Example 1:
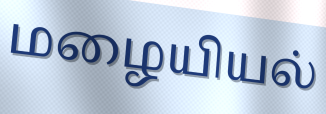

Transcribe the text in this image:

மழையியல்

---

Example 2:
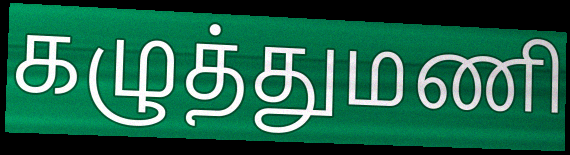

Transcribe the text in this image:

கழுத்துமணி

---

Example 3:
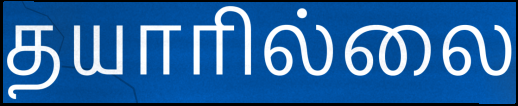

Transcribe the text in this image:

தயாரில்லை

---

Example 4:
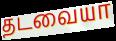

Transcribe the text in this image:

தடவையா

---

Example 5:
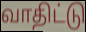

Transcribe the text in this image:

வாதிட்டு